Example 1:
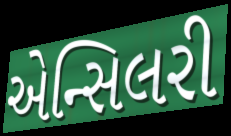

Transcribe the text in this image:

એન્સિલરી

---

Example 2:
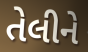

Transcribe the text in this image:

તેલીને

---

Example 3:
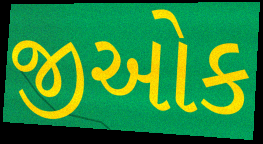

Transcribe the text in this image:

જીઓક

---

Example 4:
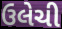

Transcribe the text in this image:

ઉલેચી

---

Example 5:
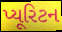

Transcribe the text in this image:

પ્યૂરિટન